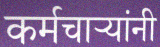
कर्मचाऱ्यांनी